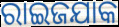
ରାଇଜଯାକ